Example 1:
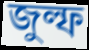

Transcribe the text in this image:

জুল্ফ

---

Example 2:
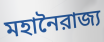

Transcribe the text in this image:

মহানৈরাজ্য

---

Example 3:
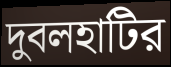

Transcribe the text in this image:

দুবলহাটির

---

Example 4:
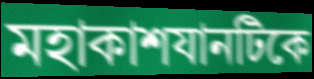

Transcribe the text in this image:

মহাকাশযানটিকে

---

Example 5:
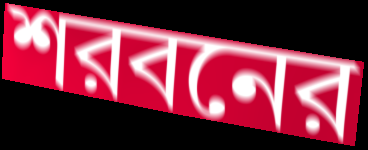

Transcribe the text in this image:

শরবনের